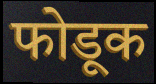
फोडूक